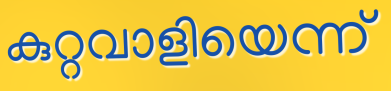
കുറ്റവാളിയെന്ന്